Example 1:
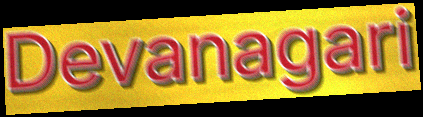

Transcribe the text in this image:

Devanagari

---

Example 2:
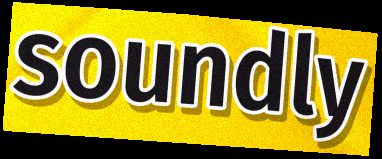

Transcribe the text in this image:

soundly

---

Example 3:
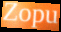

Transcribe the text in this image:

Zopu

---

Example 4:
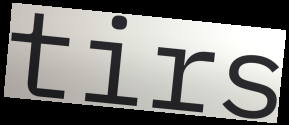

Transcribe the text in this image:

tirs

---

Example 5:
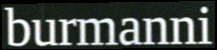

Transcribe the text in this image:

burmanni